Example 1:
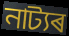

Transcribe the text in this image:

নাট্যৰ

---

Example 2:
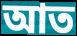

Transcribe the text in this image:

আত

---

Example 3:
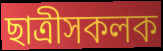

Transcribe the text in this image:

ছাত্ৰীসকলক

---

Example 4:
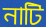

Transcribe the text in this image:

নাটি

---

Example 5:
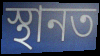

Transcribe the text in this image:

স্থানত